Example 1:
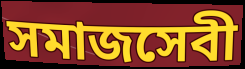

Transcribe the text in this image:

সমাজসেবী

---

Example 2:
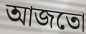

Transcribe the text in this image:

আজতো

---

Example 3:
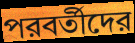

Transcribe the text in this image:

পরবর্তীদের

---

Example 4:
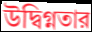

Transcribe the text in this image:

উদ্বিগ্নতার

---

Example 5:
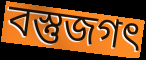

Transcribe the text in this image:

বস্তুজগৎ